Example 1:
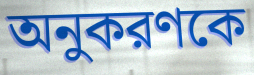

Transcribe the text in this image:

অনুকরণকে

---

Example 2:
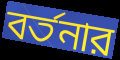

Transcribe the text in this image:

বর্তনার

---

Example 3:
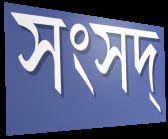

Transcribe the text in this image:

সংসদ্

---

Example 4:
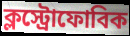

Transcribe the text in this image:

ক্লস্ট্রোফোবিক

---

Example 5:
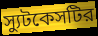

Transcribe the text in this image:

স্যুটকেসটির